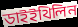
ডাইইথিলিন